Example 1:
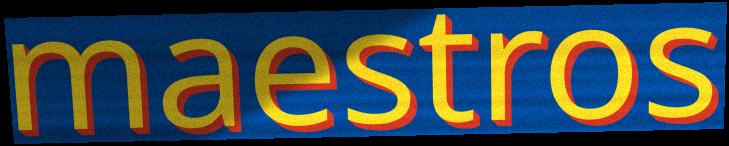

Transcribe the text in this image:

maestros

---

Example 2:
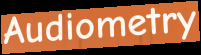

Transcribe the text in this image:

Audiometry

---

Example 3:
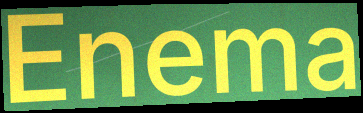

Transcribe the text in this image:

Enema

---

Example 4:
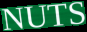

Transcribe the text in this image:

NUTS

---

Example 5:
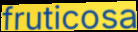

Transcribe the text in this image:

fruticosa